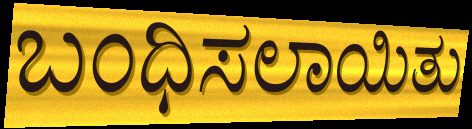
ಬಂಧಿಸಲಾಯಿತು